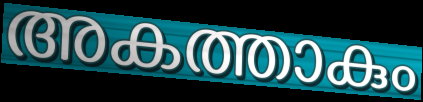
അകത്താകും